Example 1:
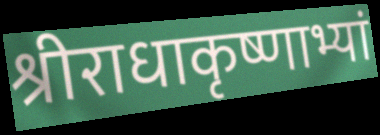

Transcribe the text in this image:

श्रीराधाकृष्णाभ्यां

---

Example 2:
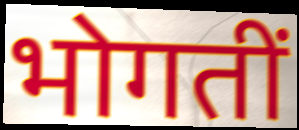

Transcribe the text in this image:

भोगतीं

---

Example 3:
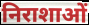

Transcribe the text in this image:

निराशाओं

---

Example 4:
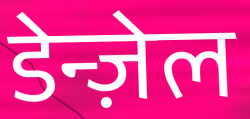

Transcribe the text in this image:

डेन्ज़ेल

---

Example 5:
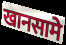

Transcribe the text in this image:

खानसामे